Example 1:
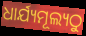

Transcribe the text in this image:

ଧାର୍ଯ୍ୟମୂଲ୍ୟଠୁ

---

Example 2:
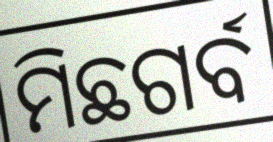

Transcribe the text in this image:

ମିଛଗର୍ବ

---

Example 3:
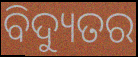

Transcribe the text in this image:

ବିଦ୍ୟୁତର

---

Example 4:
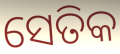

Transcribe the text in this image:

ସେତିକ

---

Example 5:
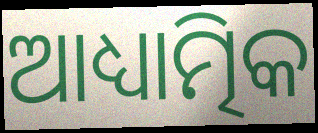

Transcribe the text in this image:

ଆଧ୍ୟାତ୍ମିକ